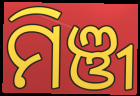
ମିଞ୍ଜ